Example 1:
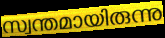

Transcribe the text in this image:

സ്വന്തമായിരുന്നു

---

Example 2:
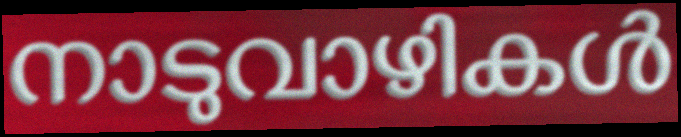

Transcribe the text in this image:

നാടുവാഴികൾ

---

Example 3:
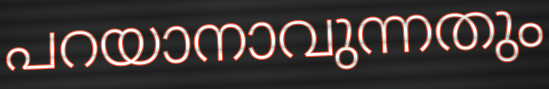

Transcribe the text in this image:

പറയാനാവുന്നതും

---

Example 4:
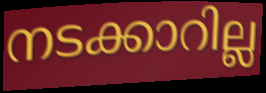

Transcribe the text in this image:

നടക്കാറില്ല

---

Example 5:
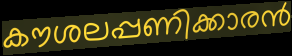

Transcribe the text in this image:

കൗശലപ്പണിക്കാരൻ